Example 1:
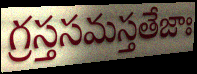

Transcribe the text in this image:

గ్రస్తసమస్తతేజాః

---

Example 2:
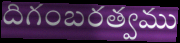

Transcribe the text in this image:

దిగంబరత్వము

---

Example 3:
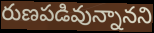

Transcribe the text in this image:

రుణపడివున్నానని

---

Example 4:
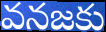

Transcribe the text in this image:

వనజకు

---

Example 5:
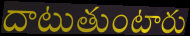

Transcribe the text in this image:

దాటుతుంటారు